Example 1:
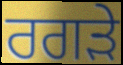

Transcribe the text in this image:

ਰਗੜੇ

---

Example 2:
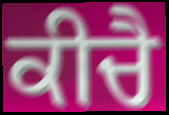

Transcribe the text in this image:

ਕੀਚੈ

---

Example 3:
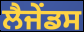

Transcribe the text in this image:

ਲੈਜੇਂਡਸ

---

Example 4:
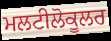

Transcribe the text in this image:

ਮਲਟੀਲੋਕੂਲਰ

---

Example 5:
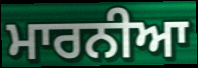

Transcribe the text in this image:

ਮਾਰਨੀਆ